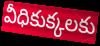
వీధికుక్కలకు